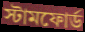
স্টামফোর্ড